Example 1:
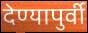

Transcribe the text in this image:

देण्यापुर्वी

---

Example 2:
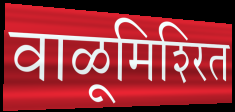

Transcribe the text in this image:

वाळूमिश्रित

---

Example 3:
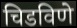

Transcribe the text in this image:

चिडविणे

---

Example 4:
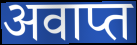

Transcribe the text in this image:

अवाप्त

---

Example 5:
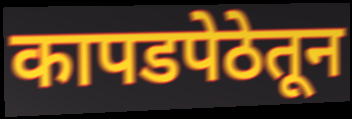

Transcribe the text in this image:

कापडपेठेतून